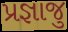
પ્રજ્ઞાજુ